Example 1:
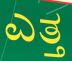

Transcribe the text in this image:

ಎತ್ತ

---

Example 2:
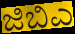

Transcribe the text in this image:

ಜಿಬಿಎ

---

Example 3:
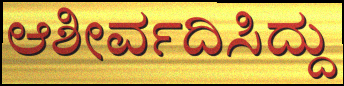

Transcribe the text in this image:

ಆಶೀರ್ವದಿಸಿದ್ದು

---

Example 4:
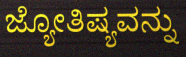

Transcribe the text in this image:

ಜ್ಯೋತಿಷ್ಯವನ್ನು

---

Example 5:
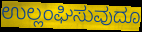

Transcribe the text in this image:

ಉಲ್ಲಂಘಿಸುವುದೂ